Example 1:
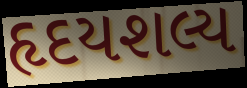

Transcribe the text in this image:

હૃદયશલ્ય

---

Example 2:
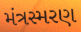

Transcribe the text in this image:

મંત્રસ્મરણ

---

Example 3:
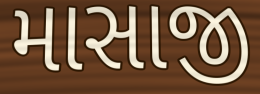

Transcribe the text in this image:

માસાજી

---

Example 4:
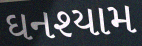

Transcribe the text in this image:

ઘનશ્યામ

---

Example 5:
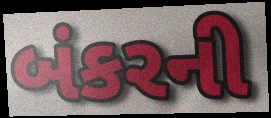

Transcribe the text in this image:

બંકરની